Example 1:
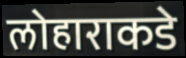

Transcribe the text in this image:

लोहाराकडे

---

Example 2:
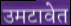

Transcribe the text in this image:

उमटावेत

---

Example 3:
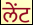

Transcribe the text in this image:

लेंट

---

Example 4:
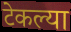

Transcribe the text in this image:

टेकल्या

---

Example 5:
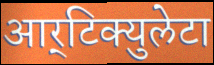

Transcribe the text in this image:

आर्टिक्युलेटा